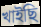
খাইছি